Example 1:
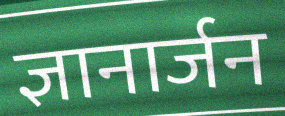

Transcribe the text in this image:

ज्ञानार्जन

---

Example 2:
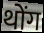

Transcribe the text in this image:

थोंग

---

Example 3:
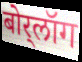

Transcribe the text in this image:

बोर्‌लॉग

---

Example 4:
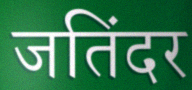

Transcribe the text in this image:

जतिंदर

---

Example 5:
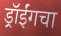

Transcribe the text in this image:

ड्रॉईंगचा